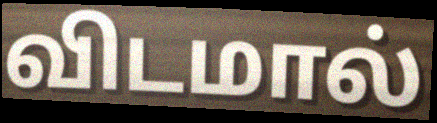
விடமால்